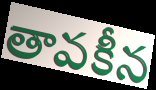
తావకీన